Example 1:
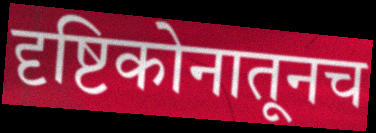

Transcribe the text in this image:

दृष्टिकोनातूनच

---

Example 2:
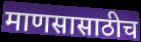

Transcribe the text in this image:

माणसासाठीच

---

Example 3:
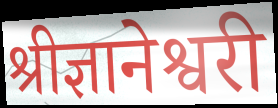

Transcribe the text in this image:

श्रीज्ञानेश्वरी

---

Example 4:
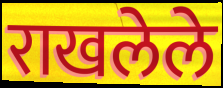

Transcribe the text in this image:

राखलेले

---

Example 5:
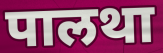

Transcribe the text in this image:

पालथा